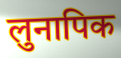
लुनापिक